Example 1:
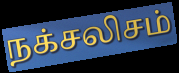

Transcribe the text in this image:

நக்சலிசம்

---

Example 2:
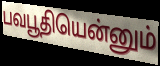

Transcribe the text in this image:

பவபூதியென்னும்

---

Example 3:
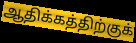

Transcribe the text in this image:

ஆதிக்கத்திற்குக்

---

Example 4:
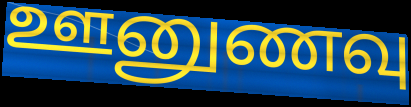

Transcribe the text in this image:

ஊனுணவு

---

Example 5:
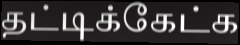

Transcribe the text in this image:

தட்டிக்கேட்க